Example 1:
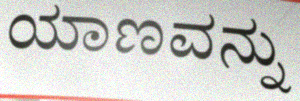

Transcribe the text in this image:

ಯಾಣವನ್ನು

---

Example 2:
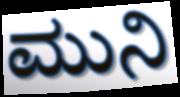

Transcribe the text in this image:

ಮುನಿ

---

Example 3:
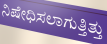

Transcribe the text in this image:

ನಿಷೇಧಿಸಲಾಗುತ್ತಿತ್ತು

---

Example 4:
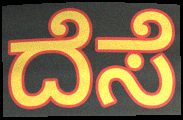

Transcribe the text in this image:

ದೆಸೆ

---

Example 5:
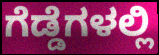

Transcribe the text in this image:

ಗೆಡ್ಡೆಗಳಲ್ಲಿ